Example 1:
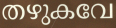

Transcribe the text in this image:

തഴുകവേ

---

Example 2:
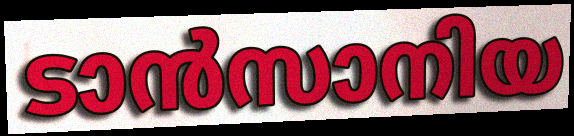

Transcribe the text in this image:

ടാൻസാനിയ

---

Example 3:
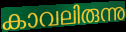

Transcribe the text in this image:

കാവലിരുന്നു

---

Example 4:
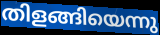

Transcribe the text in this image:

തിളങ്ങിയെന്നു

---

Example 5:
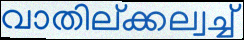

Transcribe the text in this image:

വാതില്ക്കല്വച്ച്